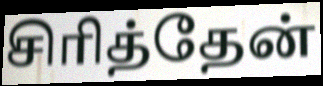
சிரித்தேன்